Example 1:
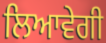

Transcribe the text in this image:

ਲਿਆਵੇਗੀ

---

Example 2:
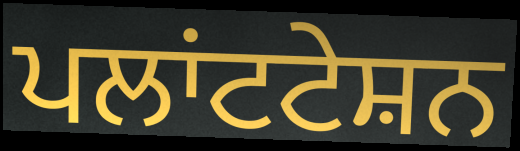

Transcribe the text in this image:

ਪਲਾਂਟਟੇਸ਼ਨ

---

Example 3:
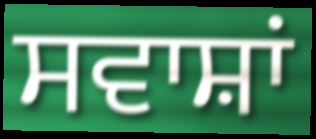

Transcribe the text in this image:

ਸਵਾਸ਼ਾਂ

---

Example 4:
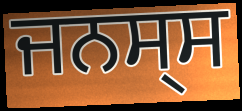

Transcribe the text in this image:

ਜਨਸ੍ਸ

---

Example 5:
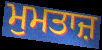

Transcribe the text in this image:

ਮੁਮਤਾਜ਼